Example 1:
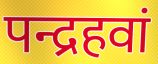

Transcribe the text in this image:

पन्द्रहवां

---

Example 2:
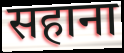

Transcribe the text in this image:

सहाना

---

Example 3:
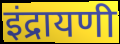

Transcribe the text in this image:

इंद्रायणी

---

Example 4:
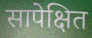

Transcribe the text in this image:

सापेक्षित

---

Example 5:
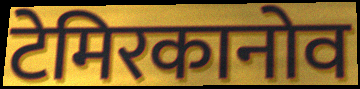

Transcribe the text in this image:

टेमिरकानोव